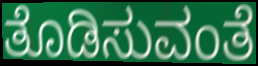
ತೊಡಿಸುವಂತೆ